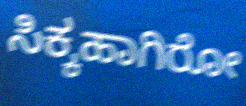
ಸಿಕ್ಕಹಾಗಿರೋ